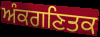
ਅੰਕਗਣਿਤਕ